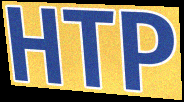
HTP